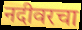
नदीवरचा